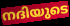
നദിയുടെ